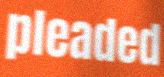
pleaded